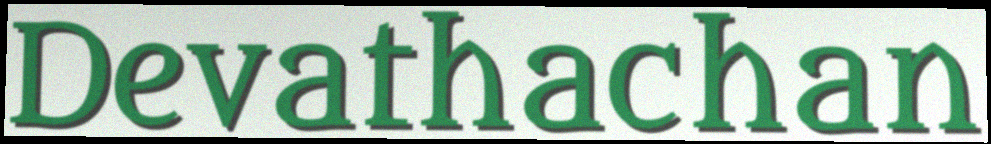
Devathachan